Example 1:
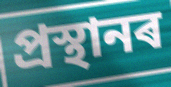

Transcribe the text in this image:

প্ৰস্থানৰ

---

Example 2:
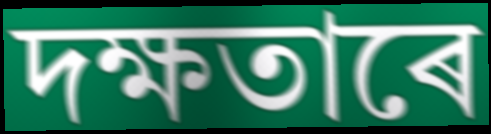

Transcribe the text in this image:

দক্ষতাৰে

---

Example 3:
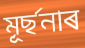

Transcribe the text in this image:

মূৰ্ছনাৰ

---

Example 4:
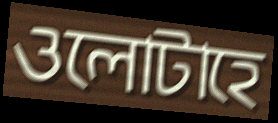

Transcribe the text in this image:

ওলোটাহে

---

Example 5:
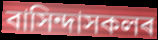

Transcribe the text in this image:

বাসিন্দাসকলৰ